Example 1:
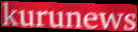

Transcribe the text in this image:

kurunews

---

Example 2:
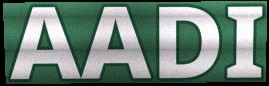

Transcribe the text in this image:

AADI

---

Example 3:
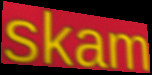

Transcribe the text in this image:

skam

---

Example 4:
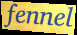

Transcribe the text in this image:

fennel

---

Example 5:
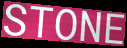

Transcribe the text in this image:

STONE